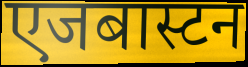
एजबास्टन